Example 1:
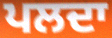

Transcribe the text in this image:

ਪਲਦਾ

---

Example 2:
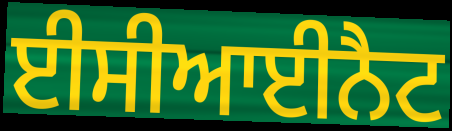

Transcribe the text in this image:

ਈਸੀਆਈਨੈਟ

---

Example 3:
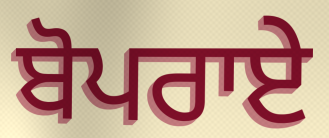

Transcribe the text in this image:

ਬੋਪਰਾਏ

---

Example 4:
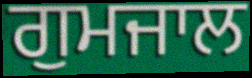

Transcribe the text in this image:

ਗੁਮਜਾਲ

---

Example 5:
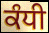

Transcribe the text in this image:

ਕੰਧੀ